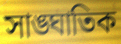
সাঙ্ঘাতিক